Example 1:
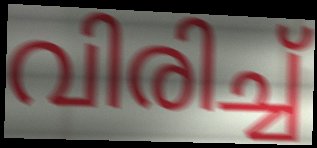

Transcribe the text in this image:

വിരിച്ച്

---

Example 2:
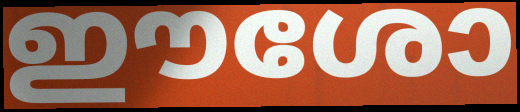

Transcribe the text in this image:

ഈശോ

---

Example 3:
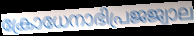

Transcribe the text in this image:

ക്രോധേനാഭിപ്രജജ്വാല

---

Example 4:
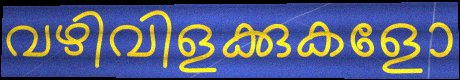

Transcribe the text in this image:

വഴിവിളക്കുകളോ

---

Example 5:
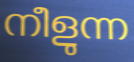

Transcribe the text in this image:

നീളുന്ന